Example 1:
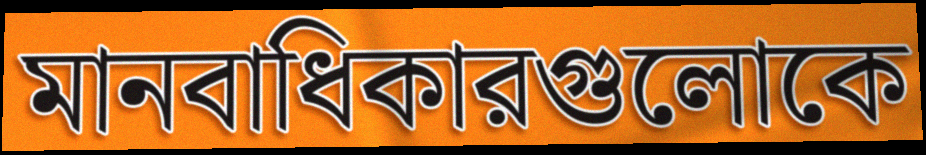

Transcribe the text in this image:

মানবাধিকারগুলোকে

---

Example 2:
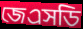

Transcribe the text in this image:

জেএসডি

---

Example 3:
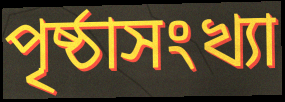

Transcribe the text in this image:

পৃষ্ঠাসংখ্যা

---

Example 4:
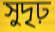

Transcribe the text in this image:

সুদৃঢ়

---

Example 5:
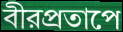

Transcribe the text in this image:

বীরপ্রতাপে